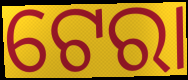
ଟେରା